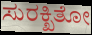
ಸುರಕ್ಖಿತೋ